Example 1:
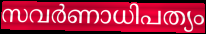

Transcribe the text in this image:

സവർണാധിപത്യം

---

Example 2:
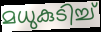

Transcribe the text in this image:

മധുകുടിച്ച്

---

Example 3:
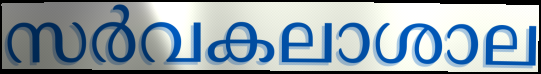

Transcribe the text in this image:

സർവകലാശാല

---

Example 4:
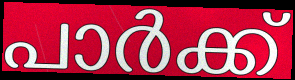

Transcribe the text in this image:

പാർക്ക്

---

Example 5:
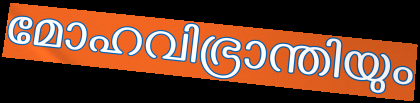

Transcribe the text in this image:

മോഹവിഭ്രാന്തിയും